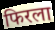
फिरला